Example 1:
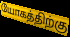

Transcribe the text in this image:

யோகத்திற்கு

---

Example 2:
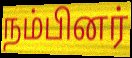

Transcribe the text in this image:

நம்பினர்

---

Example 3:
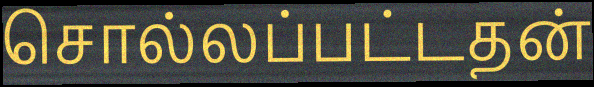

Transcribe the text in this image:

சொல்லப்பட்டதன்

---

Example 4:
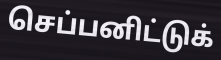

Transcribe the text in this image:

செப்பனிட்டுக்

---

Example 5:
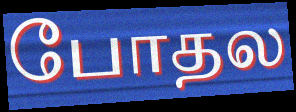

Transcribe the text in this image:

போதல